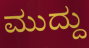
ಮುದ್ದು